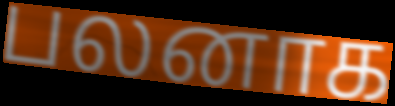
பலனாக